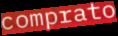
comprato